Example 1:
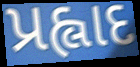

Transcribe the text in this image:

પ્રહ્લાદ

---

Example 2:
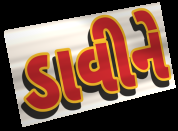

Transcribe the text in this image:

ડાવીને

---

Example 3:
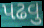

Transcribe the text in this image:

પઢવુ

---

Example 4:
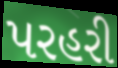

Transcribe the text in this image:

પરહરી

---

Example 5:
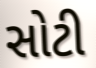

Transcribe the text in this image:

સોટી